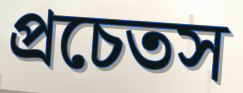
প্রচেতস